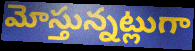
మోస్తున్నట్లుగా